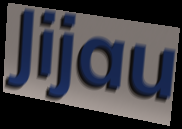
Jijau